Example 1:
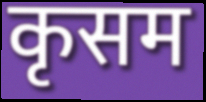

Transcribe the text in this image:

कृसम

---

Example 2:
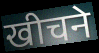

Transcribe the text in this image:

खीचने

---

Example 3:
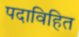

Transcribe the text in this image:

पदाविहित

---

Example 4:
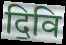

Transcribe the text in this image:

दि॒वि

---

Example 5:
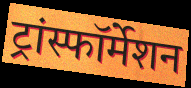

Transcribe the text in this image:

ट्रांस्फॉर्मेशन